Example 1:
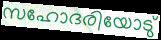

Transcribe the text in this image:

സഹോദരിയോടു്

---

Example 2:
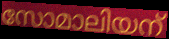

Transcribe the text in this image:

സോമാലിയന്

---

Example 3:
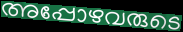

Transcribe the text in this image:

അപ്പോഴവരുടെ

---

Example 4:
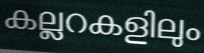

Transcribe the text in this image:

കല്ലറകളിലും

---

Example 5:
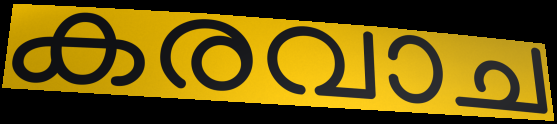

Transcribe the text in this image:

കരവാച